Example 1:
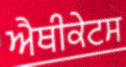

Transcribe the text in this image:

ਐਥੀਕੇਟਸ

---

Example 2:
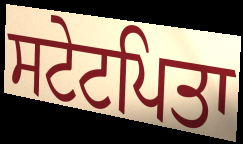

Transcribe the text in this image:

ਸਟੇਟਪਿਤਾ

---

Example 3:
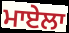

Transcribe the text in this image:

ਮਾਏਲਾ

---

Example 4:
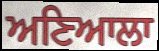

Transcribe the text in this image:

ਅਣਿਆਲਾ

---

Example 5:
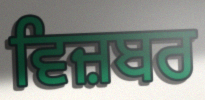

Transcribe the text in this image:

ਵਿਜ਼ਬਰ